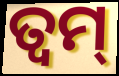
ତ୍ୱମ୍